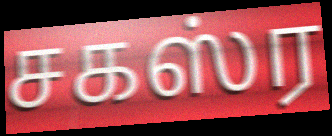
சகஸ்ர